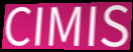
CIMIS